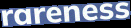
rareness